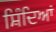
ਸ਼ਿੰਦਿਆਂ